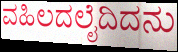
ವಹಿಲದಲೈದಿದನು